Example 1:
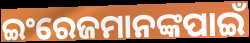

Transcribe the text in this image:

ଇଂରେଜମାନଙ୍କପାଇଁ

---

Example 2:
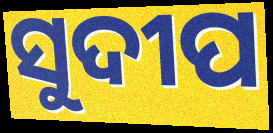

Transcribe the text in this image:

ସୁଦୀପ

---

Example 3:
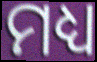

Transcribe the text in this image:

ମଧ୍ୟ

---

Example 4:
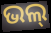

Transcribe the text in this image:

ଭଲ୍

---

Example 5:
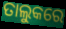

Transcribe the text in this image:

ତାଲୁକରେ